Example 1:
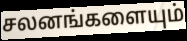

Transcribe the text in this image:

சலனங்களையும்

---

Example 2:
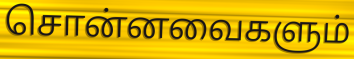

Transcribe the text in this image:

சொன்னவைகளும்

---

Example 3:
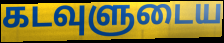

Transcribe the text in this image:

கடவுளுடைய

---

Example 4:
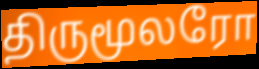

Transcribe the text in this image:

திருமூலரோ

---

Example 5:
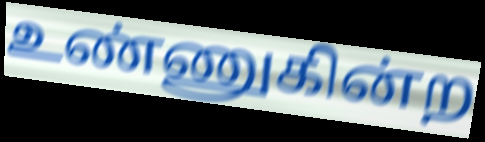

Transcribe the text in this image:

உண்ணுகின்ற